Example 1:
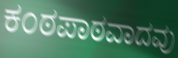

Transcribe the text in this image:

ಕಂಠಪಾಠವಾದವು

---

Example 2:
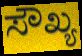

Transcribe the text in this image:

ಸೌಖ್ಯ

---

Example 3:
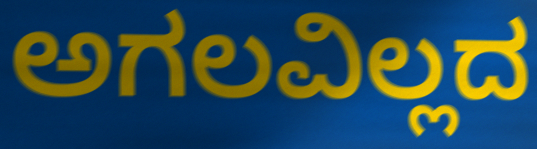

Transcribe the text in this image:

ಅಗಲವಿಲ್ಲದ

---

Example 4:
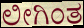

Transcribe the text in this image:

ಲೀಗಿಂತ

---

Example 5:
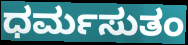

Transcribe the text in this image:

ಧರ್ಮಸುತಂ